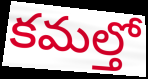
కమల్తో